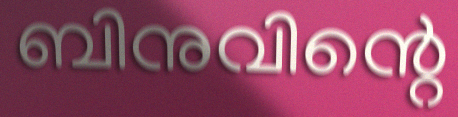
ബിനുവിന്റെ